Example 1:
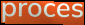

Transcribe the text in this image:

proces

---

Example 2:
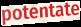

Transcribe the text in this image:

potentate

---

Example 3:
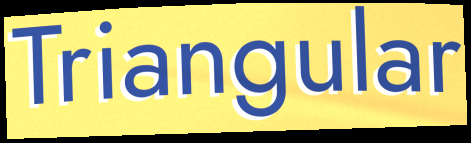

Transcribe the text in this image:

Triangular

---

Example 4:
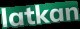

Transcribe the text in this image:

latkan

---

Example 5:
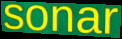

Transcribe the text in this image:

sonar